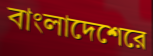
বাংলাদেশেরে